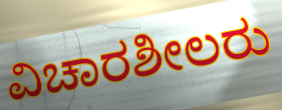
ವಿಚಾರಶೀಲರು